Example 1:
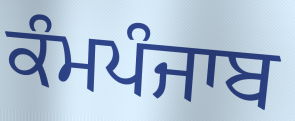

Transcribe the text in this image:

ਕੰਮਪੰਜਾਬ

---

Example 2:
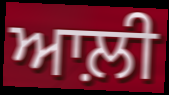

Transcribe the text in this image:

ਆਲ਼ੀ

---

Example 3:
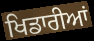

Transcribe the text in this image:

ਖਿਡਾਰੀਆਂ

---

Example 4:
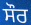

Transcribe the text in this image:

ਸੌਰ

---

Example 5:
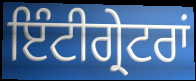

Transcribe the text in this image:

ਇੰਟੀਗ੍ਰੇਟਰਾਂ